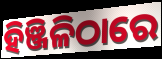
ହିଞ୍ଜିଳିଠାରେ